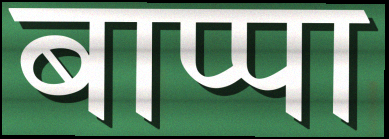
बाप्पा